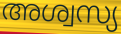
അശ്വസ്യ